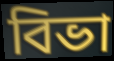
বিভা